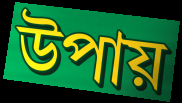
উপায়